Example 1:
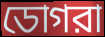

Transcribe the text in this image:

ডোগরা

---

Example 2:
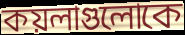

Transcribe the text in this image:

কয়লাগুলোকে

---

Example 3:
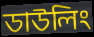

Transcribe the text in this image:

ডাউলিং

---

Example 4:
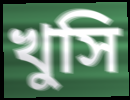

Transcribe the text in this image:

খুসি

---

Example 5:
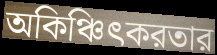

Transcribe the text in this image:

অকিঞ্চিৎকরতার